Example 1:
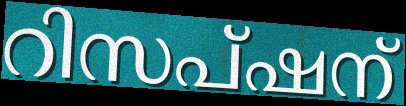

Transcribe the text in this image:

റിസപ്ഷന്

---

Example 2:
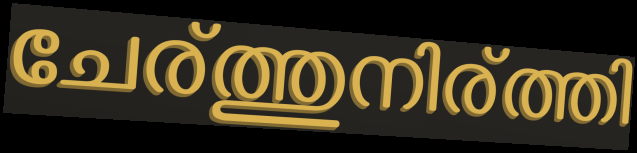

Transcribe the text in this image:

ചേര്ത്തുനിര്ത്തി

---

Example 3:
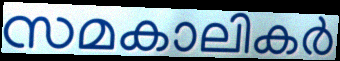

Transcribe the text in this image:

സമകാലികർ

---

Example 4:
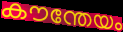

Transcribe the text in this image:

കൗന്തേയം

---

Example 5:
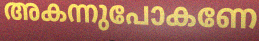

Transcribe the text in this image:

അകന്നുപോകണേ